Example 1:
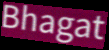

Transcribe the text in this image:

Bhagat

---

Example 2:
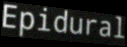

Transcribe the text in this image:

Epidural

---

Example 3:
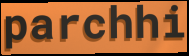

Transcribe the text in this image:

parchhi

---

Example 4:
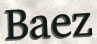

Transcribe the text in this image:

Baez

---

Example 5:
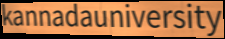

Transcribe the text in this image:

kannadauniversity